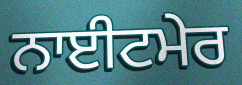
ਨਾਈਟਮੇਰ